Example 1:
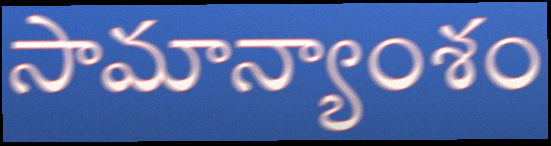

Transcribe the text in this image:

సామాన్యాంశం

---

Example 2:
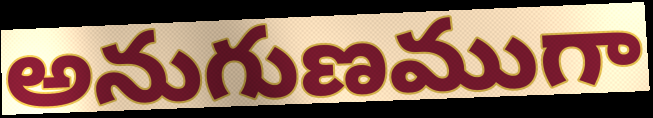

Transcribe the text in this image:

అనుగుణముగా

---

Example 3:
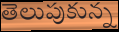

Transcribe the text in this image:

తెలుపుకున్న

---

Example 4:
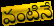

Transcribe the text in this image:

వంటినే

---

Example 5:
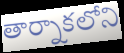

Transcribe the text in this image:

తార్నాకలోని